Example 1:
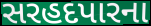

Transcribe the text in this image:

સરહદપારના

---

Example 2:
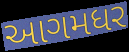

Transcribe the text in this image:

આગમધર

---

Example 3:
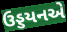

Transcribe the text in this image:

ઉડ્ડયનએ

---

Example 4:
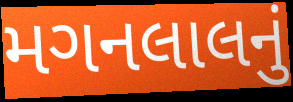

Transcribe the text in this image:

મગનલાલનું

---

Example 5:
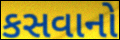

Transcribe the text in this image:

કસવાનો